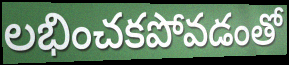
లభించకపోవడంతో